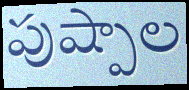
పుష్పాల